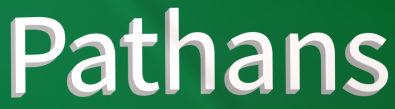
Pathans